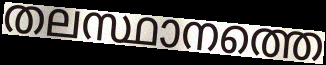
തലസ്ഥാനത്തെ